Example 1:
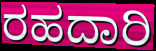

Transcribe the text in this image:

ರಹದಾರಿ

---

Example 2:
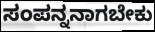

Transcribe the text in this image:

ಸಂಪನ್ನನಾಗಬೇಕು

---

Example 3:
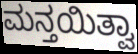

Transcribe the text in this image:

ಮನ್ತಯಿತ್ವಾ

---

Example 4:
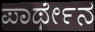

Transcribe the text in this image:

ಪಾರ್ಥೇನ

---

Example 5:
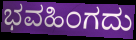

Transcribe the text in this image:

ಭವಹಿಂಗದು